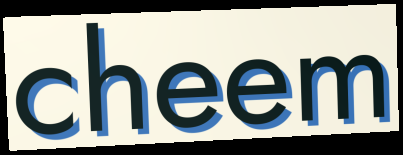
cheem